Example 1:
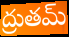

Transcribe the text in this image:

ద్రుతమ్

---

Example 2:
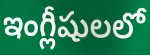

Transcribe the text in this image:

ఇంగ్లీషులలో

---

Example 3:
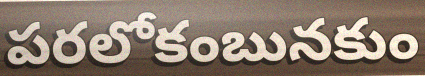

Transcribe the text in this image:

పరలోకంబునకుం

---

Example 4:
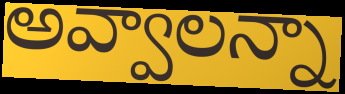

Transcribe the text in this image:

అవ్వాలన్నా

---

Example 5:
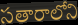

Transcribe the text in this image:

సతారాలోని